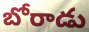
బోరాడు